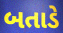
બતાડે